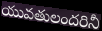
యువతులందరినీ